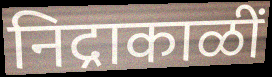
निद्राकाळीं